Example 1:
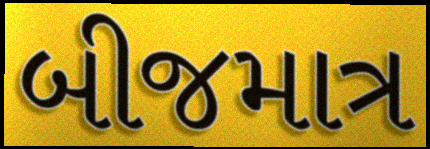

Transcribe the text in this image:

બીજમાત્ર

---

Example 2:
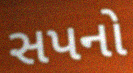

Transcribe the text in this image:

સપનો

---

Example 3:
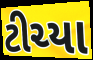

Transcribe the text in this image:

ટીચ્યા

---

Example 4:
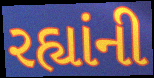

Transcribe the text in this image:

રહ્યાંની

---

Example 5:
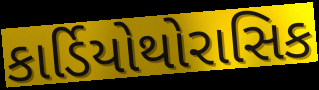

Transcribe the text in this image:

કાર્ડિયોથોરાસિક